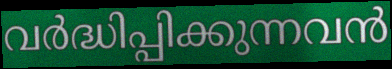
വർദ്ധിപ്പിക്കുന്നവൻ